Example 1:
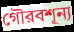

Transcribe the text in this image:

গৌরবশূন্য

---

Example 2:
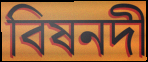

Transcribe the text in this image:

বিষনদী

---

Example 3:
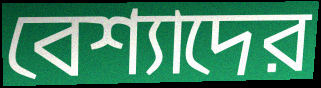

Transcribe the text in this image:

বেশ্যাদের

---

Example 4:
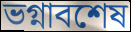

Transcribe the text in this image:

ভগ্নাবশেষ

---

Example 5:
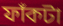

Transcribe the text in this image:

ফাঁকটা